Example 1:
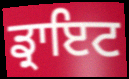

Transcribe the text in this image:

ਡ੍ਰਾਇਟ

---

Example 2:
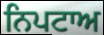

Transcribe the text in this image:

ਨਿਪਟਾਅ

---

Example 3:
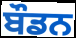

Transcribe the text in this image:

ਬੌਡਨ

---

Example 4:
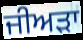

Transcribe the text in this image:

ਜੀਅੜਾ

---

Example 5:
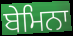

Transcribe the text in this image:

ਬੇਮਿਨਾ